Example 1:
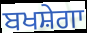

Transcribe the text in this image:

ਬਖਸ਼ੇਗਾ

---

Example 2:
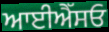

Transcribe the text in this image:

ਆਈਐੱਸਓ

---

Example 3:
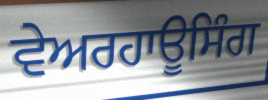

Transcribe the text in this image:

ਵੇਅਰਹਾਊਸਿੰਗ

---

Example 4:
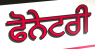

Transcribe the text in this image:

ਫੋਨੇਟਰੀ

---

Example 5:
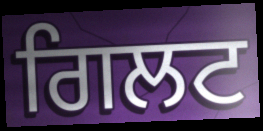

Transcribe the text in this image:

ਗਿਲਟ